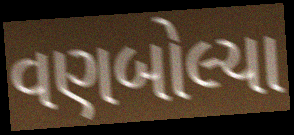
વણબોલ્યા